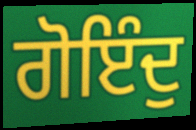
ਗੋਇੰਦੁ